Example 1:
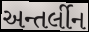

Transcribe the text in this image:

અન્તર્લીન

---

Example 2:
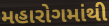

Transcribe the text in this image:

મહારોગમાંથી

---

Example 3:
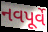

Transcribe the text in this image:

નવપૂર્વે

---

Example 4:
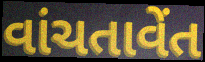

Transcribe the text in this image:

વાંચતાવેંત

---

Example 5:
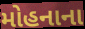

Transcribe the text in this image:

મોહનાના